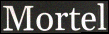
Mortel